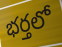
భర్తలో